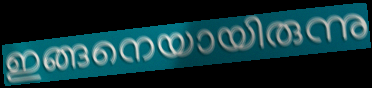
ഇങ്ങനെയായിരുന്നു